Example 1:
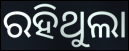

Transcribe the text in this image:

ରହିଥୁଲା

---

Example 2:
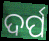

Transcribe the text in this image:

ଦର୍ପ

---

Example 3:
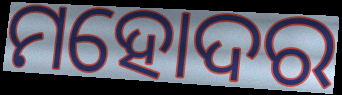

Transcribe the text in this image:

ମହୋଦର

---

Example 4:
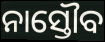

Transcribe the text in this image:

ନାସ୍ତୌବ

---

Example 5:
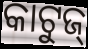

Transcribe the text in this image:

କାଟୁଜ୍